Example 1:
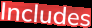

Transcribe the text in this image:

Includes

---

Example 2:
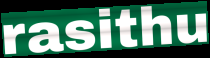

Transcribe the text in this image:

rasithu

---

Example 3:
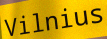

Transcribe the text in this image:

Vilnius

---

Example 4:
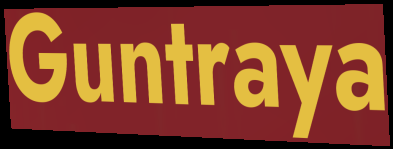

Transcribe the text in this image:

Guntraya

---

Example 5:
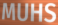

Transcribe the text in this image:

MUHS